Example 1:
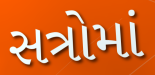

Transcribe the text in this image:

સત્રોમાં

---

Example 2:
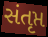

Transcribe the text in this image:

સંતૃપ્ત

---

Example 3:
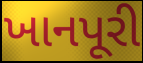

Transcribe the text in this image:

ખાનપૂરી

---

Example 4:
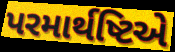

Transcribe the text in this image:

પરમાર્થષ્ટિએ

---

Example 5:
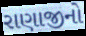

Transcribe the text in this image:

રાણાજીનો